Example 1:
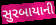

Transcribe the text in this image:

સુરબાયાની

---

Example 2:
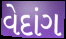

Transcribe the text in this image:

વેદાંગ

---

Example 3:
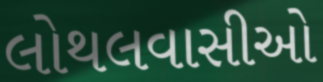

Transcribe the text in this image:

લોથલવાસીઓ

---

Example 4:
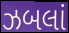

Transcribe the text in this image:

ઝબલાં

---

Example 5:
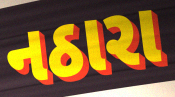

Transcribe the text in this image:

નઠારા